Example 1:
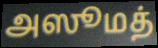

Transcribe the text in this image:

அஸூமத்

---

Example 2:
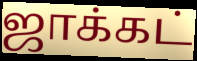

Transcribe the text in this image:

ஜாக்கட்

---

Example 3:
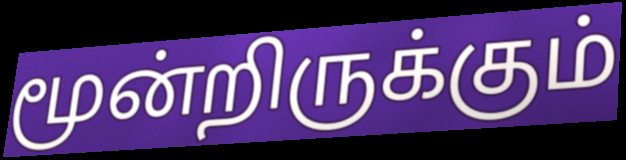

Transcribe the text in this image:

மூன்றிருக்கும்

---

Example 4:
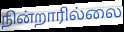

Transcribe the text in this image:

நின்றாரில்லை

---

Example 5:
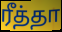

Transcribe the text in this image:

ரீத்தா